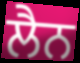
ਲੈਨ